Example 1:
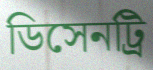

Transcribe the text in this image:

ডিসেনট্রি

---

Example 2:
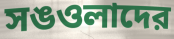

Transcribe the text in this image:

সঙওলাদের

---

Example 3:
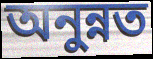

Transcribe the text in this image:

অনুন্নত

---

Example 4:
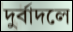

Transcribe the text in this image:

দুর্বাদলে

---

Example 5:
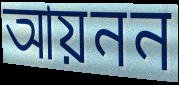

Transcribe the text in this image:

আয়নন